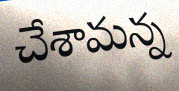
చేశామన్న